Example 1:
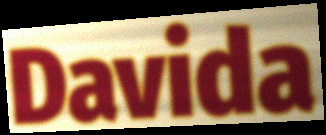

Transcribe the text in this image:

Davida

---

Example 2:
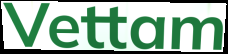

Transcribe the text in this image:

Vettam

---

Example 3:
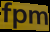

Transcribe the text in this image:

fpm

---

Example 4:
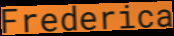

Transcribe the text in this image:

Frederica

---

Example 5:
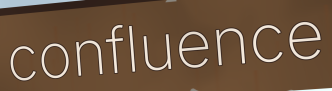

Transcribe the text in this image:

confluence